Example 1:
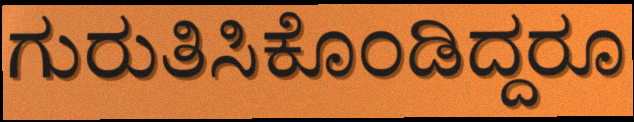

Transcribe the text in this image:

ಗುರುತಿಸಿಕೊಂಡಿದ್ದರೂ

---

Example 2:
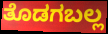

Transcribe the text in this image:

ತೊಡಗಬಲ್ಲ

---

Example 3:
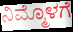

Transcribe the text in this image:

ನಿಮ್ಮೊಳಗೆ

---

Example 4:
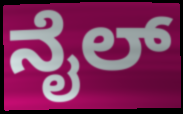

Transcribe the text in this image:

ನೈಲ್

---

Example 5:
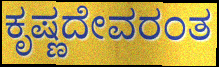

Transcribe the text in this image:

ಕೃಷ್ಣದೇವರಂತ